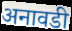
अनावडी